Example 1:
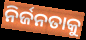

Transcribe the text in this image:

ନିର୍ଜନତାକୁ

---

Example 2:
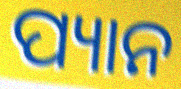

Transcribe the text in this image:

ପ୍ୟାନ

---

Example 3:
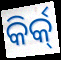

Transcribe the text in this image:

କିର୍କ୍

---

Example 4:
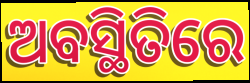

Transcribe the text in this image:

ଅବସ୍ଥିତିରେ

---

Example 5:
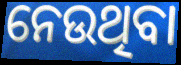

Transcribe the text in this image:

ନେଉଥିବା